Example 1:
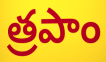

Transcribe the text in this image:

త్రపాం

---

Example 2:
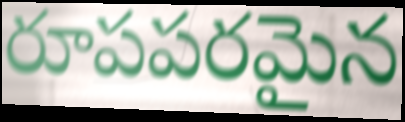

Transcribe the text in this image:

రూపపరమైన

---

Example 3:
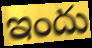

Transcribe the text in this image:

ఇందు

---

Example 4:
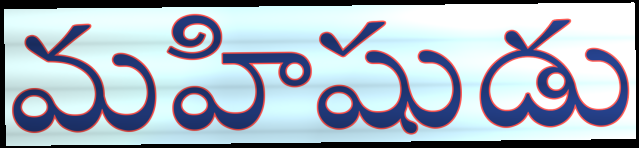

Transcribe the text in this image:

మహిషుడు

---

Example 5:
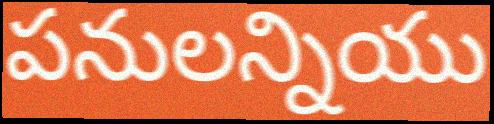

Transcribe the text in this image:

పనులన్నియు